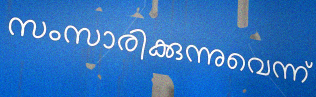
സംസാരിക്കുന്നുവെന്ന്